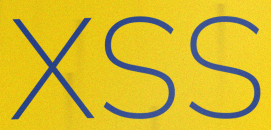
XSS